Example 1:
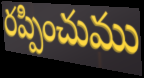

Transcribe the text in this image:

రప్పించుము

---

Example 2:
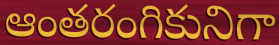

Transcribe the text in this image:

ఆంతరంగికునిగా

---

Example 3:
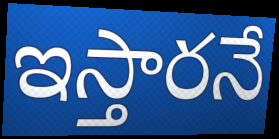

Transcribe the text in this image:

ఇస్తారనే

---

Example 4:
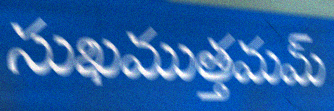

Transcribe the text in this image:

సుఖముత్తమమ్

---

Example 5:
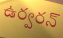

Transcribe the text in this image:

ఉర్వరన్